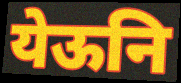
येऊनि